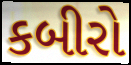
કબીરો